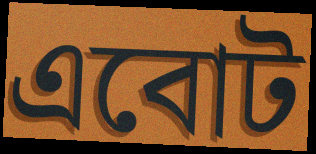
এবোট